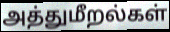
அத்துமீறல்கள்